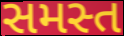
સમસ્ત